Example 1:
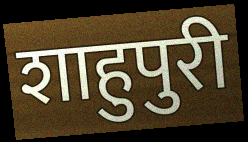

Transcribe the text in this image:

शाहुपुरी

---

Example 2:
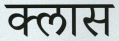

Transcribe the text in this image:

क्लास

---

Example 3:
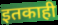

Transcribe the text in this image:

इतकाही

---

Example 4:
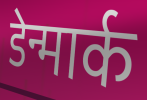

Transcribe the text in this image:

डेन्मार्क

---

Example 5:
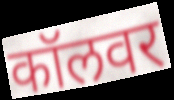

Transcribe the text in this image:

कॉलवर